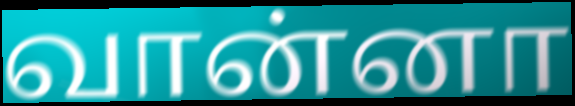
வான்னா